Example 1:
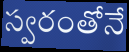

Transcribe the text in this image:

స్వరంతోనే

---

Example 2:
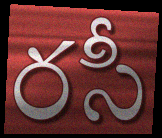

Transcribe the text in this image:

రసీ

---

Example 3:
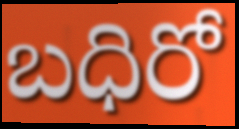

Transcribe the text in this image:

బధిరో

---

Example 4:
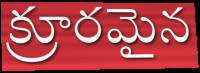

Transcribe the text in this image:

క్రూరమైన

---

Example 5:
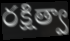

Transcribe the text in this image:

రక్షిత్వా